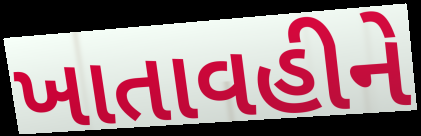
ખાતાવહીને